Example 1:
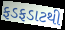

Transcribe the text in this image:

ફડફડાટથી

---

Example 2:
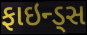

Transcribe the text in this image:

ફાઇન્ડ્સ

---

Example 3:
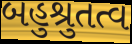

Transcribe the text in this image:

બહુશ્રુતત્વ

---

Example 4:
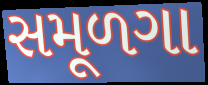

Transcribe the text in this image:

સમૂળગા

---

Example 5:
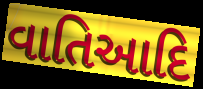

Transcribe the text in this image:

વાતિઆદિ